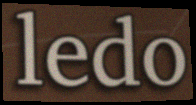
ledo